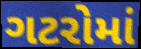
ગટરોમાં